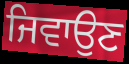
ਜਿਵਾਉਣ